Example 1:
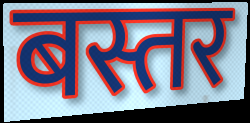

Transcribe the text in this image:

बस्तर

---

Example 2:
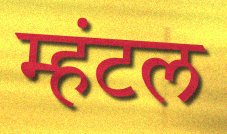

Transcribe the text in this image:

म्हंटल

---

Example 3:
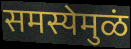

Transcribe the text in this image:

समस्येमुळं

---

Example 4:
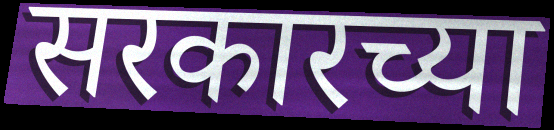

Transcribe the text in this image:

सरकारच्या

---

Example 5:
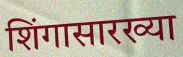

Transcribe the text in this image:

शिंगासारख्या